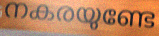
നകരയുണ്ടേ